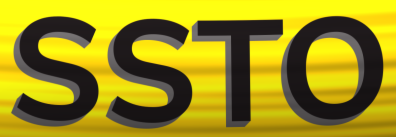
SSTO